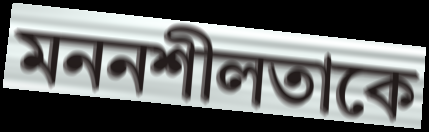
মননশীলতাকে